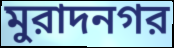
মুরাদনগর